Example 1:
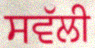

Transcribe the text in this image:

ਸਵੱਲੀ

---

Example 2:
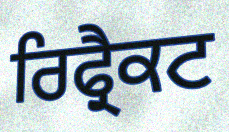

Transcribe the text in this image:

ਰਿਫ੍ਰੈਕਟ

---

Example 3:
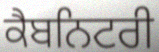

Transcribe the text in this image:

ਕੈਬਨਿਟਰੀ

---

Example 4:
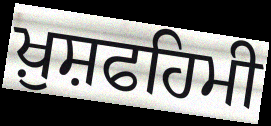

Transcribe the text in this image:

ਖ਼ੁਸ਼ਫਹਿਮੀ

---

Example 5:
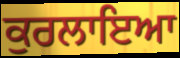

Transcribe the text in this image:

ਕੁਰਲਾਇਆ